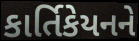
કાર્તિકેયનને